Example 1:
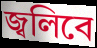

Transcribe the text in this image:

জ্বলিবে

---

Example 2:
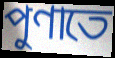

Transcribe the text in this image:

পুণাতে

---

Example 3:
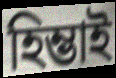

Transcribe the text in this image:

হিম্ভাই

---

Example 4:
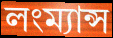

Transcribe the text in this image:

লংম্যান্স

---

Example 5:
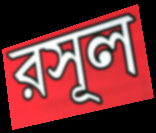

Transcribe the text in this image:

রসূল